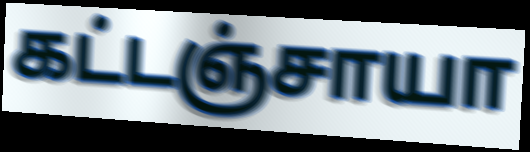
கட்டஞ்சாயா